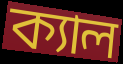
ক্যাল